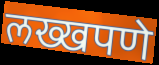
लख्खपणे